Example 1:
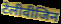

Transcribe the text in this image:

टेलीवीजिन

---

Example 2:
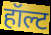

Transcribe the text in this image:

हॉल्ट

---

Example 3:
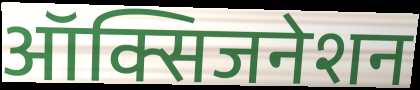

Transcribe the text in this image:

ऑक्सिजनेशन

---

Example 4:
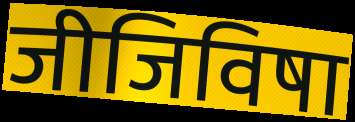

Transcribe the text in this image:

जीजिविषा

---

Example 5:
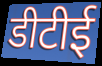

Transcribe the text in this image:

डीटीई